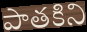
పాతకిని